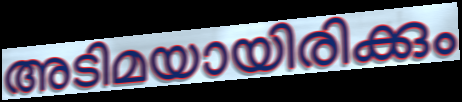
അടിമയായിരിക്കും